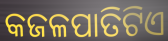
କଜଳପାତିଟିଏ